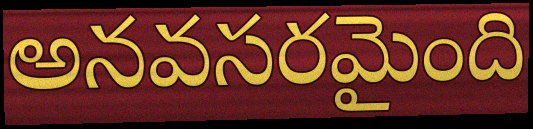
అనవసరమైంది